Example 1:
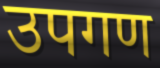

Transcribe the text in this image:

उपगण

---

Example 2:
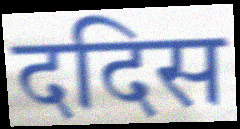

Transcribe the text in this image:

ददिस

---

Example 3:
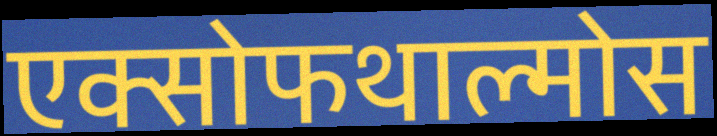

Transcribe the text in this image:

एक्सोफथाल्मोस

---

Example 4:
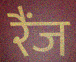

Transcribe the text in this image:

रैंज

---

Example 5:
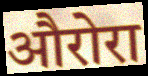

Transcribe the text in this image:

औरोरा